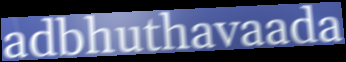
adbhuthavaada